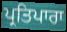
ਪ੍ਰਤਿਪਾਰਾ